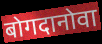
बोगदानोवा